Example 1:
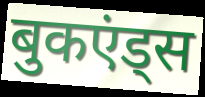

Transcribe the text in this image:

बुकएंड्स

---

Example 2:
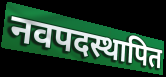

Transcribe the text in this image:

नवपदस्थापित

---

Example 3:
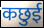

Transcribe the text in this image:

कछुई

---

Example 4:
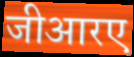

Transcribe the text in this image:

जीआरए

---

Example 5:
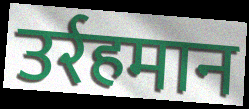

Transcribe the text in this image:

उर्रहमान